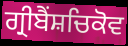
ਗ੍ਰੀਬੈਂਸ਼ਚਿਕੋਵ